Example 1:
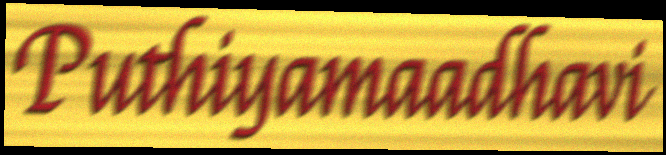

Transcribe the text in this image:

Puthiyamaadhavi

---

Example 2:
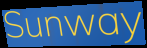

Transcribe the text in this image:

Sunway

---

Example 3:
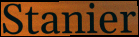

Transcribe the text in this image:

Stanier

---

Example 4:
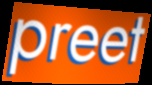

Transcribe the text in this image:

preet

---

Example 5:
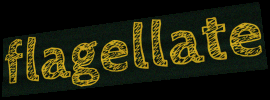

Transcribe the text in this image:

flagellate